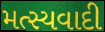
મત્સ્યવાદી